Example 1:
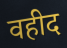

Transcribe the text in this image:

वहीद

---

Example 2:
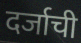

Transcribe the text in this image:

दर्जाची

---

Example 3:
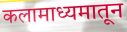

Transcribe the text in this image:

कलामाध्यमातून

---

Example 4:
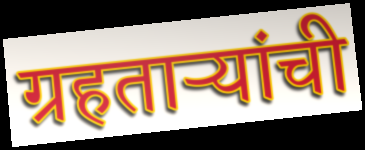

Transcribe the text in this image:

ग्रहताऱ्यांची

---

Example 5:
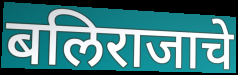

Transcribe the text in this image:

बलिराजाचे